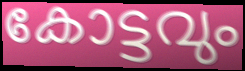
കോട്ടവും